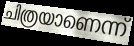
ചിത്രയാണെന്ന്